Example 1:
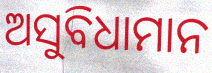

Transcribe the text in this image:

ଅସୁବିଧାମାନ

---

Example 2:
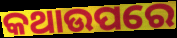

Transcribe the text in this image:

କଥାଉପରେ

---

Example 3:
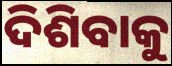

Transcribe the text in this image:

ଦିଶିବାକୁ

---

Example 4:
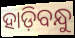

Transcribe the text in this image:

ହାଡ଼ିବନ୍ଧୁ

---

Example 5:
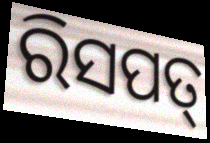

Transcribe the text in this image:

ରିସପତ୍